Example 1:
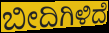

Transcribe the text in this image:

ಬೀದಿಗಿಳಿದೆ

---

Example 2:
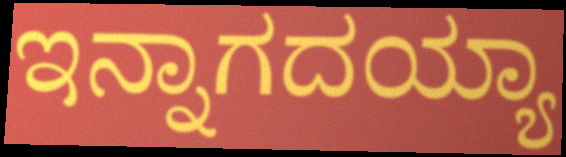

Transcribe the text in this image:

ಇನ್ನಾಗದಯ್ಯಾ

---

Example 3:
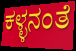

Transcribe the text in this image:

ಕಳ್ಳನಂತೆ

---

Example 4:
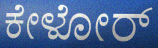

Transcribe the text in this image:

ಕೇಳೋರ್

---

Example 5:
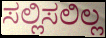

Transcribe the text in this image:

ಸಲ್ಲಿಸಲಿಲ್ಲ